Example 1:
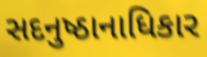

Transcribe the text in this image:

સદનુષ્ઠાનાધિકાર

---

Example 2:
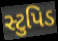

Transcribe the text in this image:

સ્ટુપિડ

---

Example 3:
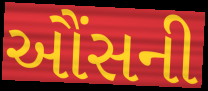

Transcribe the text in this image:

ઔંસની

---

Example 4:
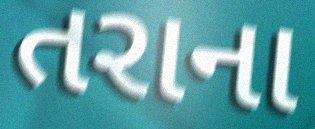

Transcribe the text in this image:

તરાના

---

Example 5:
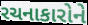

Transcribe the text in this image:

રચનાકારોને